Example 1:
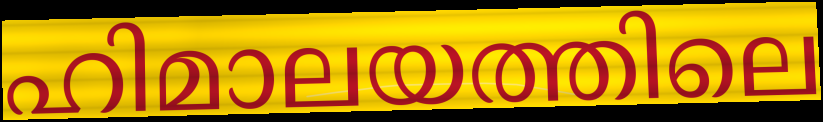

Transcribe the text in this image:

ഹിമാലയത്തിലെ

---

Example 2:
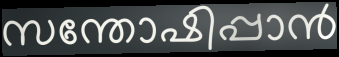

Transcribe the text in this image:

സന്തോഷിപ്പാൻ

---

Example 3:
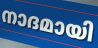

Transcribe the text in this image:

നാദമായി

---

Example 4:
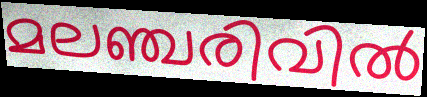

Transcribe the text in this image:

മലഞ്ചരിവിൽ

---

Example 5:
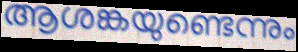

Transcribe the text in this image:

ആശങ്കയുണ്ടെന്നും